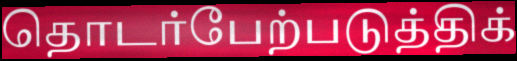
தொடர்பேற்படுத்திக்